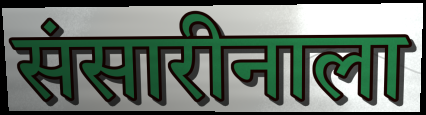
संसारीनाला